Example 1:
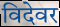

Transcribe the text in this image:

विदेवर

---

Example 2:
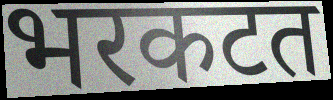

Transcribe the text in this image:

भरकटत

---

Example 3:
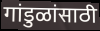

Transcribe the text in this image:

गांडुळांसाठी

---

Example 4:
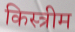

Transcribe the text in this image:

किस्त्रीम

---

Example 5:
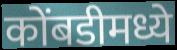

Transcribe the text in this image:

कोंबडीमध्ये